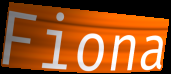
Fiona